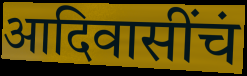
आदिवासींचं